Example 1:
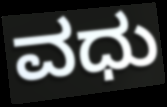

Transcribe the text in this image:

ವಧು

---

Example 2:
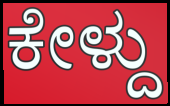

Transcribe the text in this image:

ಕೇಳ್ದು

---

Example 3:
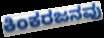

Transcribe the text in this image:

ಕಿಂಕರಜನವು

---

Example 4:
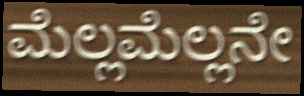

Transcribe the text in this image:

ಮೆಲ್ಲಮೆಲ್ಲನೇ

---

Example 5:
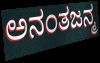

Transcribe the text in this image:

ಅನಂತಜನ್ಮ